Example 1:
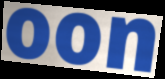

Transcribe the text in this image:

oon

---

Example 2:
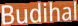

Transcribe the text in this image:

Budihal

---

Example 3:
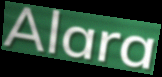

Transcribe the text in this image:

Alara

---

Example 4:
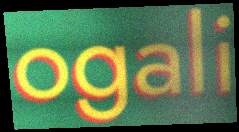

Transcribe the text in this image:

ogali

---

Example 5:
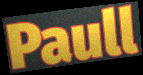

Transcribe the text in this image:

Paull